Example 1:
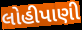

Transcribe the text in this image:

લોહીપાણી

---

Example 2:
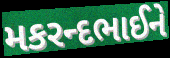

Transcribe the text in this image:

મકરન્દભાઈને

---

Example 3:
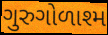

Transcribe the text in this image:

ગુરુગોળાશ્મ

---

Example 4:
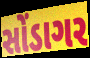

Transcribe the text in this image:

સોંડાગર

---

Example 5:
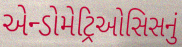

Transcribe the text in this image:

એન્ડોમેટ્રિઓસિસનું